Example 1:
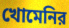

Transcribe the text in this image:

খোমেনির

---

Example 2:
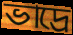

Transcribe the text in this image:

ভাদ্রে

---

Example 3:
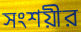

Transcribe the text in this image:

সংশয়ীর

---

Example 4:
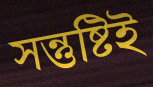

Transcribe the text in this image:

সন্তুষ্টিই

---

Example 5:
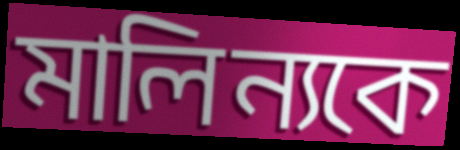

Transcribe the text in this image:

মালিন্যকে